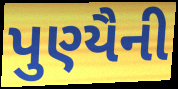
પુણ્યૈની